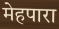
मेहपारा